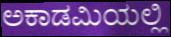
ಅಕಾಡಮಿಯಲ್ಲಿ